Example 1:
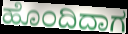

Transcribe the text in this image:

ಹೊಂದಿದಾಗ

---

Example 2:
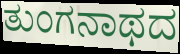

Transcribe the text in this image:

ತುಂಗನಾಥದ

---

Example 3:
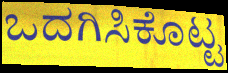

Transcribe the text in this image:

ಒದಗಿಸಿಕೊಟ್ಟ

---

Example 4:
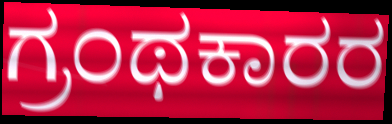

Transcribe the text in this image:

ಗ್ರಂಥಕಾರರ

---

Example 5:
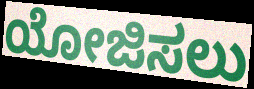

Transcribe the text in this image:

ಯೋಜಿಸಲು